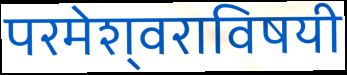
परमेश्वराविषयी